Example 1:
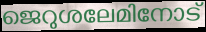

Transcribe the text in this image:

ജെറുശലേമിനോട്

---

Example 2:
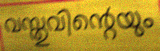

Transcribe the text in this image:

വസ്തുവിന്റെയും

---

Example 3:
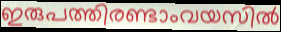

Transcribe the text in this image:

ഇരുപത്തിരണ്ടാംവയസിൽ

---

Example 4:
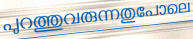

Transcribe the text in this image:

പുറത്തുവരുന്നതുപോലെ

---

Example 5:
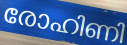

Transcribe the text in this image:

രോഹിണി